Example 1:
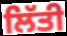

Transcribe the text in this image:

ਲਿੱਤੀ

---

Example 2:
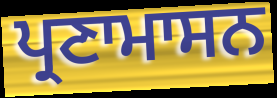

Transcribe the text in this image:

ਪ੍ਰਣਾਮਾਸਨ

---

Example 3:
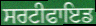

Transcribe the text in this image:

ਸਰਟੀਫਾਇਡ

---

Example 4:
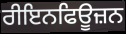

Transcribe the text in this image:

ਰੀਇਨਫਿਊਜ਼ਨ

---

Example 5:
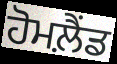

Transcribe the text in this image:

ਹੋਮਲ਼ੈਂਡ